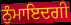
ਨੁੰਮਾਇਦਗੀ